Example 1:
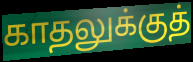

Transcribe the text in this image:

காதலுக்குத்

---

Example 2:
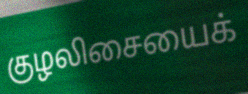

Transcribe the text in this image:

குழலிசையைக்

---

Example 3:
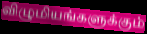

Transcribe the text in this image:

விழுமியங்களுக்கும்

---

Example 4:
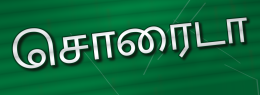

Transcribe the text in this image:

சொரைடா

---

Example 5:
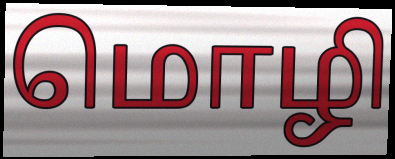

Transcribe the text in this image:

மொழி